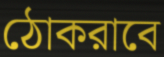
ঠোকরাবে